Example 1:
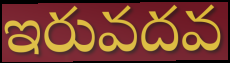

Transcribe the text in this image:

ఇరువదవ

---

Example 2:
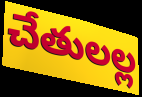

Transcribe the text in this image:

చేతులల్ల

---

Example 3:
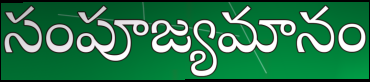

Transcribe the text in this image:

సంపూజ్యమానం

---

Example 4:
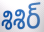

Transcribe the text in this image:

శిశిర్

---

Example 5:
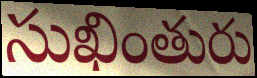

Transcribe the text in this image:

సుఖింతురు